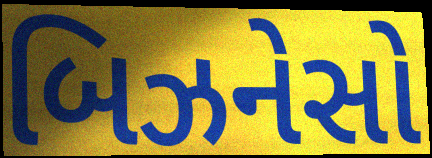
બિઝનેસો